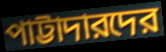
পাট্টাদারদের